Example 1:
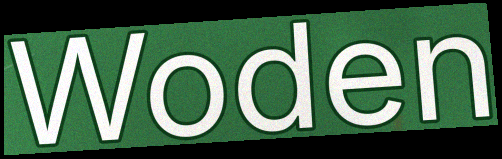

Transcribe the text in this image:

Woden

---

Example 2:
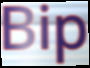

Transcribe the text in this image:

Bip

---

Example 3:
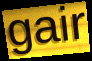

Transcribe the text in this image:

gair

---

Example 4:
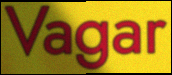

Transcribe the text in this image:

Vagar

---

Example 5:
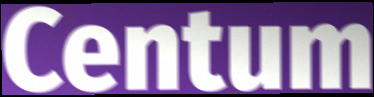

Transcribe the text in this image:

Centum